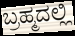
ಬ್ರಹ್ಮದಲ್ಲಿ